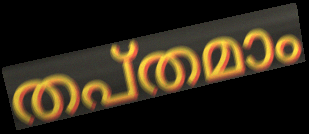
തപ്തമാം